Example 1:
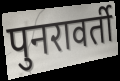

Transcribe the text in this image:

पुनरावर्ती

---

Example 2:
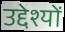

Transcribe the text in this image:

उद्देश्यों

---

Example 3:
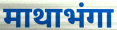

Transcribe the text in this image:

माथाभंगा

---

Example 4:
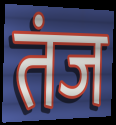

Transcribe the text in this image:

तंज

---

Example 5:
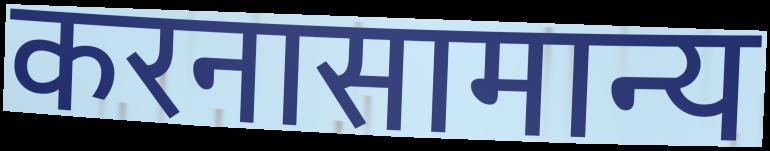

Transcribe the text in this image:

करनासामान्य